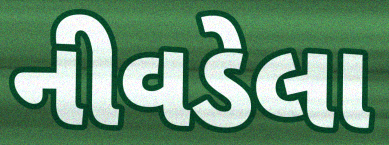
નીવડેલા